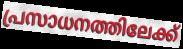
പ്രസാധനത്തിലേക്ക്